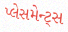
પ્લેસમેન્ટ્સ